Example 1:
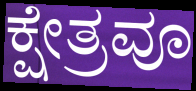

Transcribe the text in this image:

ಕ್ಷೇತ್ರವೂ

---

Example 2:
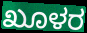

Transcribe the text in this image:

ಖೂಳರ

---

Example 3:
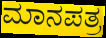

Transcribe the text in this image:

ಮಾನಪತ್ರ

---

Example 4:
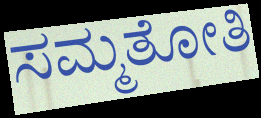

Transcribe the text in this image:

ಸಮ್ಮತೋತಿ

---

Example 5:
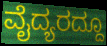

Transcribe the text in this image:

ವೈದ್ಯರದ್ದೂ